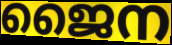
ജൈന